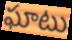
ఘాటు